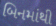
બિનમાંથી